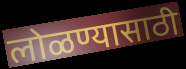
लोळण्यासाठी